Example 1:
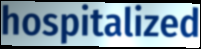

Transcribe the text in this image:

hospitalized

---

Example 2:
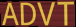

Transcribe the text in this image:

ADVT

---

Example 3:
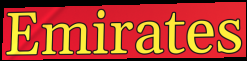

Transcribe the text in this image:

Emirates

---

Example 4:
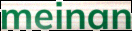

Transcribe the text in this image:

meinan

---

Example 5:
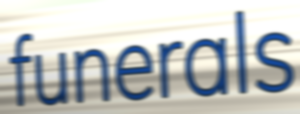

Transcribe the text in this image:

funerals